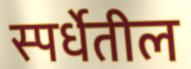
स्पर्धेतील